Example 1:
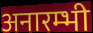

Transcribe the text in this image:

अनारम्भी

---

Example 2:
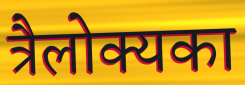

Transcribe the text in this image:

त्रैलोक्यका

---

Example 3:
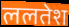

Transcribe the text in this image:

ललतेश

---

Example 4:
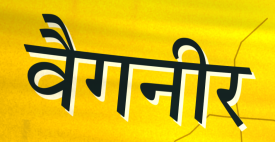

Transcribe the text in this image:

वैगनीर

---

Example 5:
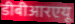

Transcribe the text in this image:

डीबीआरएयू